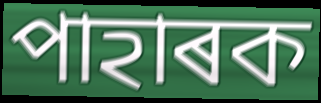
পাহাৰক